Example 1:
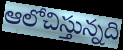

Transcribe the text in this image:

ఆలోచిస్తున్నది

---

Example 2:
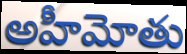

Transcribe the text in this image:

అహీమోతు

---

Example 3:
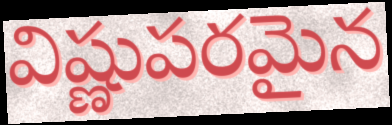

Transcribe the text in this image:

విష్ణుపరమైన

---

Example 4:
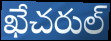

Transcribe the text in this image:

ఖేచరుల్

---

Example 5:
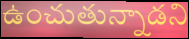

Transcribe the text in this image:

ఉంచుతున్నాడని